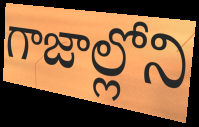
గాజాల్లోని